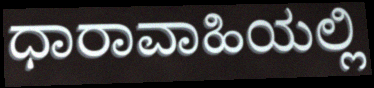
ಧಾರಾವಾಹಿಯಲ್ಲಿ